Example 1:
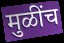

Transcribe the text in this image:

मुळींच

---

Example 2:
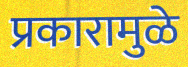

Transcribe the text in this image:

प्रकारामुळे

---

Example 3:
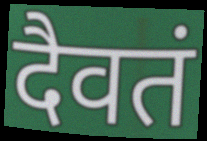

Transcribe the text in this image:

दैवतं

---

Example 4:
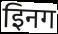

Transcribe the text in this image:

इिनग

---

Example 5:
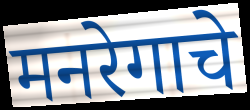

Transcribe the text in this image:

मनरेगाचे